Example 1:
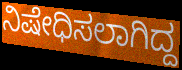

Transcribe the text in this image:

ನಿಷೇಧಿಸಲಾಗಿದ್ದ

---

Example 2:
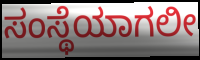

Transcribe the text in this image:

ಸಂಸ್ಥೆಯಾಗಲೀ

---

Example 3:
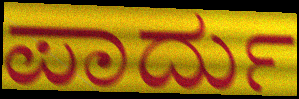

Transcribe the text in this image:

ಪಾರ್ದು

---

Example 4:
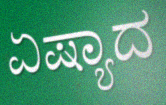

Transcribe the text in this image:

ಏಷ್ಯಾದ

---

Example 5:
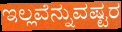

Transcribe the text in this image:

ಇಲ್ಲವೆನ್ನುವಷ್ಟರ